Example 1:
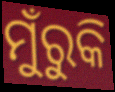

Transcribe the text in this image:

ମୁଁରୁକି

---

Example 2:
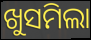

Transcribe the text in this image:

ଖୁସମିଲା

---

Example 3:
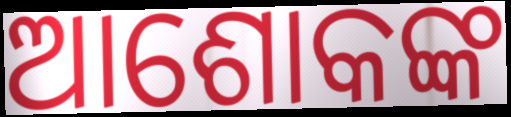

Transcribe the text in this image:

ଆଶୋକଙ୍କ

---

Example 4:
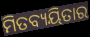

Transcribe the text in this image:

ମିତବ୍ୟୟିତାର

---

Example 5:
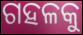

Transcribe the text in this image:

ଗହଳକୁ